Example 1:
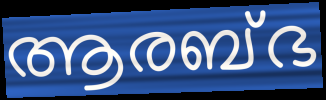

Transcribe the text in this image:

ആരബ്ഭ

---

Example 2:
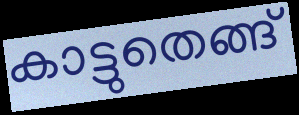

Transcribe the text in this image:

കാട്ടുതെങ്ങ്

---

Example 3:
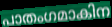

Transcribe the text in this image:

പാതംഗമാകിന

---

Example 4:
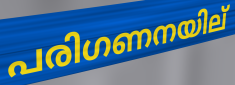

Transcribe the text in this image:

പരിഗണനയില്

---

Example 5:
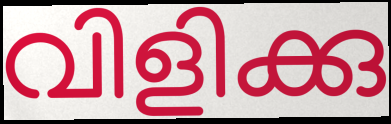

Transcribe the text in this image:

വിളിക്കു